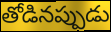
తోడినప్పుడు